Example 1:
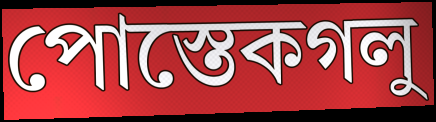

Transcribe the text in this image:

পোস্তেকগলু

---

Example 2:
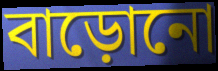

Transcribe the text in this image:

বাড়োনো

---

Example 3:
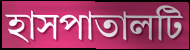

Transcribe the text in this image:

হাসপাতালটি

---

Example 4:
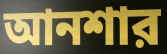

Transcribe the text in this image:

আনশার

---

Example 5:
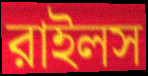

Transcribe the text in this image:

রাইলস